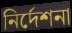
নিৰ্দেশনা